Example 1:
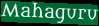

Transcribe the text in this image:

Mahaguru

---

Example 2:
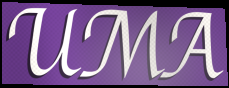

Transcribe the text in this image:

UMA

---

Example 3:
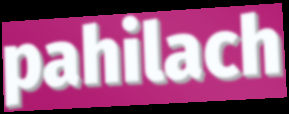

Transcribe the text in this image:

pahilach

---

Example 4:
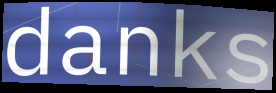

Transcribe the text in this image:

danks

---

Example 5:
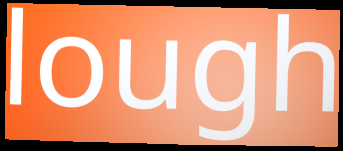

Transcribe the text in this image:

lough